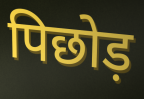
पिछोड़